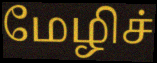
மேழிச்